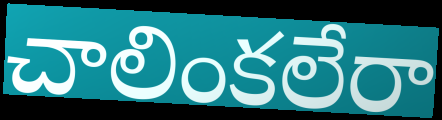
చాలింకలేరా